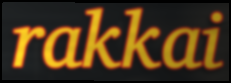
rakkai